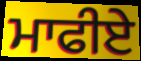
ਮਾਫੀਏ